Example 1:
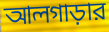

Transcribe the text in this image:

আলগাড়ার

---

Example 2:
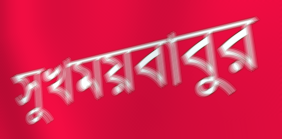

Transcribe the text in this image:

সুখময়বাবুর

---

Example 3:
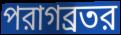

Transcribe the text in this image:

পরাগব্রতর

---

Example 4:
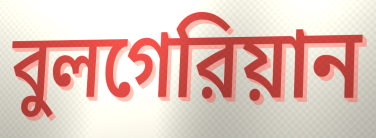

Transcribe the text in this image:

বুলগেরিয়ান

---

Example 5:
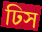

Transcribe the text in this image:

ঢিস